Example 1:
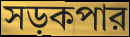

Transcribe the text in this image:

সড়কপার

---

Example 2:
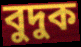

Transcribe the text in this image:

বুদুক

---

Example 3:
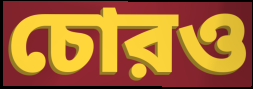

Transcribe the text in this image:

চোরও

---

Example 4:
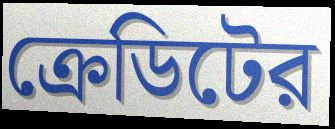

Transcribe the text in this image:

ক্রেডিটের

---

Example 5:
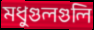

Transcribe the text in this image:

মধুগুলগুলি